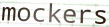
mockers